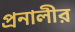
প্রনালীর